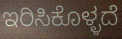
ಇರಿಸಿಕೊಳ್ಳದೆ